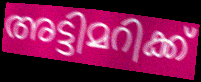
അട്ടിമറിക്ക്